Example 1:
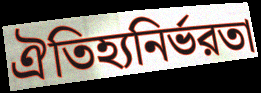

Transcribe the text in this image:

ঐতিহ্যনির্ভরতা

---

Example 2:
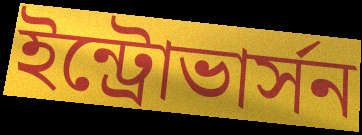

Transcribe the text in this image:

ইন্ট্রোভার্সন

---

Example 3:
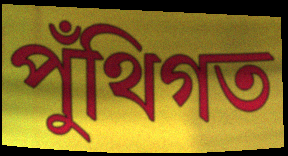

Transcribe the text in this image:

পুঁথিগত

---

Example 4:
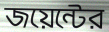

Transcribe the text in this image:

জয়েন্টের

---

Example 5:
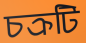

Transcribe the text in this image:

চক্রটি